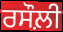
ਰਸੌਲ਼ੀ